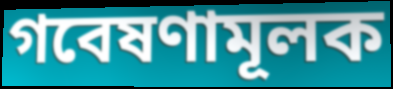
গবেষণামূলক